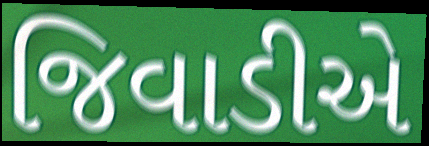
જિવાડીએ